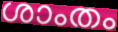
ശാംതം